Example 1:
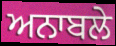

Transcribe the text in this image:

ਅਨਾਬਲੇ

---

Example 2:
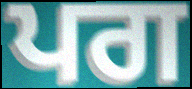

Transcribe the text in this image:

ਪਗ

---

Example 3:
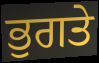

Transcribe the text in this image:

ਭੁਗਤੇ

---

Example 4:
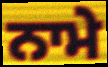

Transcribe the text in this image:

ਨਾਮੇ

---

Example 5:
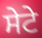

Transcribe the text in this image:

ਸੇਟੇ